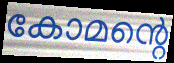
കോമന്റെ